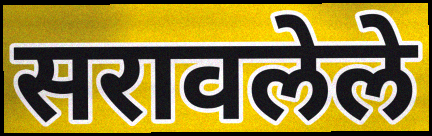
सरावलेले